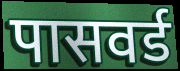
पासवर्ड